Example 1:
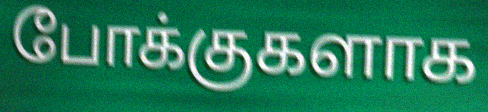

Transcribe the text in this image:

போக்குகளாக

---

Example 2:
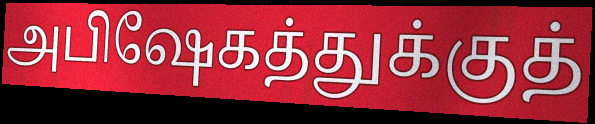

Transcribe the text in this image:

அபிஷேகத்துக்குத்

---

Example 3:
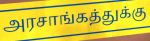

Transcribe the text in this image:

அரசாங்கத்துக்கு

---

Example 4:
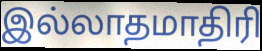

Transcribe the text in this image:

இல்லாதமாதிரி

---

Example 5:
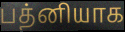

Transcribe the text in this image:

பத்னியாக